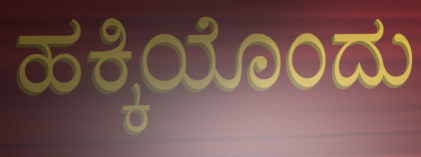
ಹಕ್ಕಿಯೊಂದು